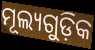
ମୂଲ୍ୟଗୁଡ଼ିକ